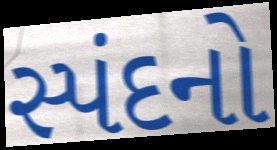
સ્પંદનો